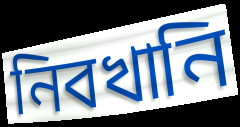
নিবখানি